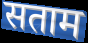
सताम